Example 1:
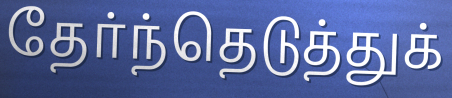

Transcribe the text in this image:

தேர்ந்தெடுத்துக்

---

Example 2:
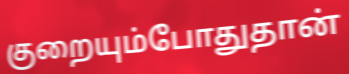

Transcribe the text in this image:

குறையும்போதுதான்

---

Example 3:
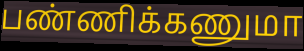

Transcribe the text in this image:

பண்ணிக்கணுமா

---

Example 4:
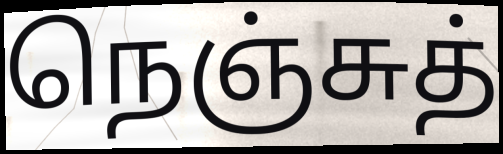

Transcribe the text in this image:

நெஞ்சுத்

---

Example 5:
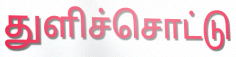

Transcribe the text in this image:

துளிச்சொட்டு